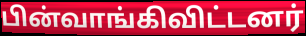
பின்வாங்கிவிட்டனர்